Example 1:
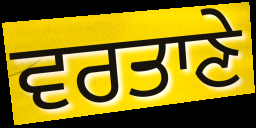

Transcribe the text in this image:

ਵਰਤਾਣੇ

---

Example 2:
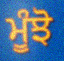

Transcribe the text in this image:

ਮੂੰਝੋ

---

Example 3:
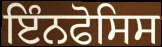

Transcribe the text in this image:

ਇੰਨਫੋਸਿਸ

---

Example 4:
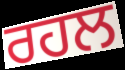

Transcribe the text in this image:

ਰਹਲ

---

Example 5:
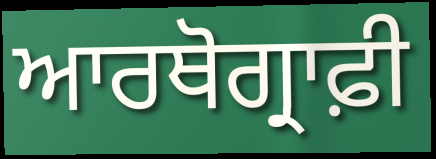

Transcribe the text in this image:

ਆਰਥੋਗ੍ਰਾਫ਼ੀ